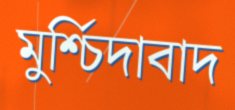
মুৰ্শ্চিদাবাদ